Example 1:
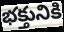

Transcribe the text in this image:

భక్తునికి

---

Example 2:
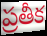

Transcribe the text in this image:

ప్రతీక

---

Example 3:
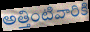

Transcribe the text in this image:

అత్తింటివారికి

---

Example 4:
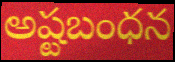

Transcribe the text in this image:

అష్టబంధన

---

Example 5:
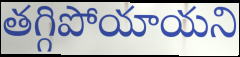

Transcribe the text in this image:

తగ్గిపోయాయని